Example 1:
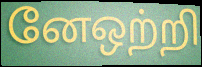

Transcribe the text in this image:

னேஒற்றி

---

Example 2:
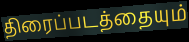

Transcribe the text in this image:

திரைப்படத்தையும்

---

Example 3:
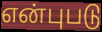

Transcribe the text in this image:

என்புபடு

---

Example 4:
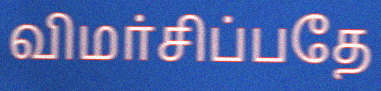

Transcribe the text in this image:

விமர்சிப்பதே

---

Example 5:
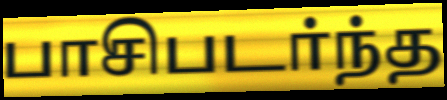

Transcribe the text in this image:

பாசிபடர்ந்த